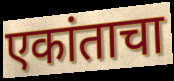
एकांताचा